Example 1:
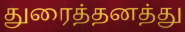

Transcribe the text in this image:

துரைத்தனத்து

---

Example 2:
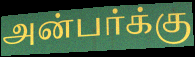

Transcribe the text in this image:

அன்பர்க்கு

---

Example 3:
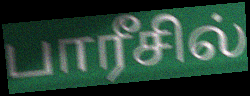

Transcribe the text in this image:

பாரீசில்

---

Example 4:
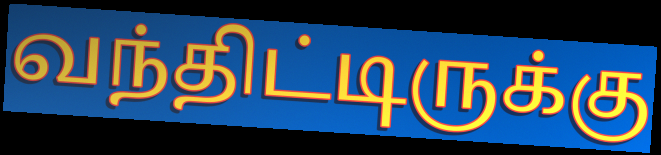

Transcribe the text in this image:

வந்திட்டிருக்கு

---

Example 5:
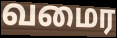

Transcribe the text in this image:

வமைர